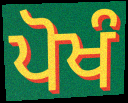
ਪੋਖੰ